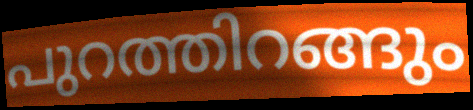
പുറത്തിറങ്ങും